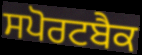
ਸਪੋਰਟਬੈਕ